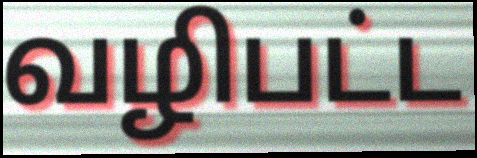
வழிபட்ட